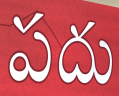
పదు